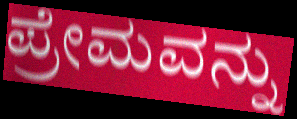
ಪ್ರೇಮವನ್ನು